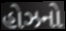
હોઝનો